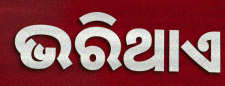
ଭରିଥାଏ